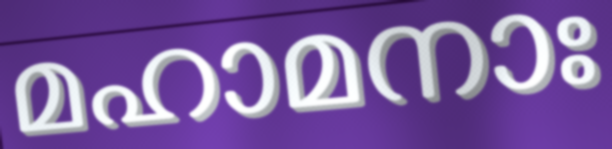
മഹാമനാഃ